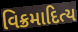
વિક્રમાદિત્ય